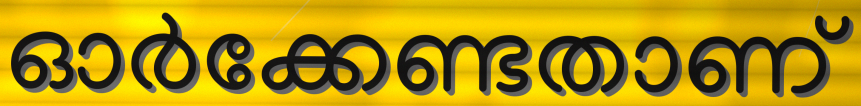
ഓർക്കേണ്ടതാണ്